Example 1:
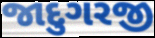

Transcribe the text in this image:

જાદુગરજી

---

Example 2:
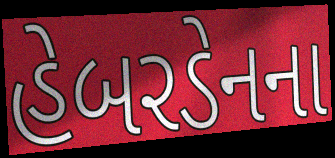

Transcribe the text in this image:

હેબરડેનના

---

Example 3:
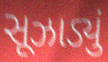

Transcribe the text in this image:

સૂઝાડ્યું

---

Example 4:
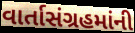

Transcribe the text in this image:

વાર્તાસંગ્રહમાંની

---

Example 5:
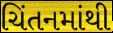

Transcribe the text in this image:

ચિંતનમાંથી